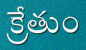
క్రేతుం